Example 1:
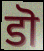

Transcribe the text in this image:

डॊ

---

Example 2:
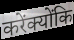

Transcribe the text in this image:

करेंक्योंकि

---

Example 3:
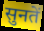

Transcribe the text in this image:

सुनतें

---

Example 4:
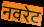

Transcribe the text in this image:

नवरेट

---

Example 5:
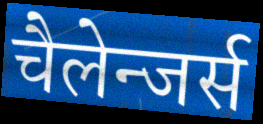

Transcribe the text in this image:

चैलेन्जर्स